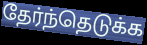
தேர்ந்தெடுக்க